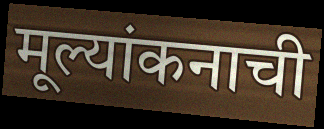
मूल्यांकनाची